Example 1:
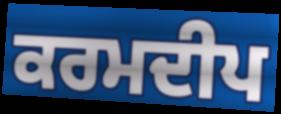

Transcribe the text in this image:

ਕਰਮਦੀਪ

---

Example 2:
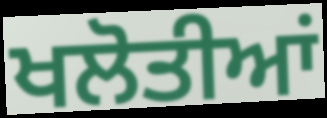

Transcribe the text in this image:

ਖਲੋਤੀਆਂ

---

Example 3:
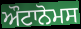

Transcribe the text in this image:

ਔਟਾਨੋਮਸ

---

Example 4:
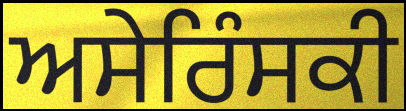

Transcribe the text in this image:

ਅਸੇਰਿੰਸਕੀ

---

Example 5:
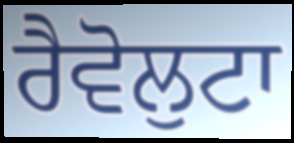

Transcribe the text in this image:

ਰੈਵੋਲੁਟਾ